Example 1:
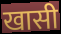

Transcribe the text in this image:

खासी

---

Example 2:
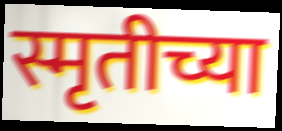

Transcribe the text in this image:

स्मृतीच्या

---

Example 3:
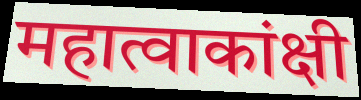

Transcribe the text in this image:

महात्वाकांक्षी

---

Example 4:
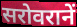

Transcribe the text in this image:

सरोवरानें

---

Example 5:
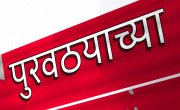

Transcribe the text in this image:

पुरवठयाच्या